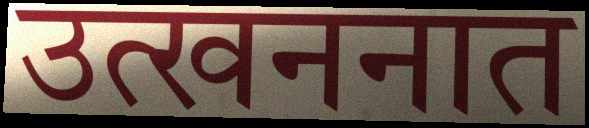
उत्खननात